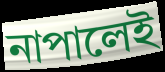
নাপালেই